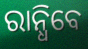
ରାନ୍ଧିବେ